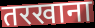
तरखाना